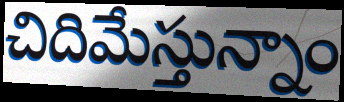
చిదిమేస్తున్నాం